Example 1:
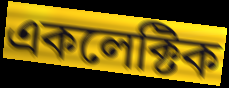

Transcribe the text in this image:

একলেক্টিক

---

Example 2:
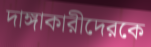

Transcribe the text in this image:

দাঙ্গাকারীদেরকে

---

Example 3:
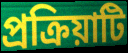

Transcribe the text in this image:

প্রক্রিয়াটি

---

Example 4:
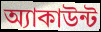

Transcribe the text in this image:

অ্যাকাউন্ট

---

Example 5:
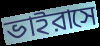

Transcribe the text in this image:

ভাইরাসে